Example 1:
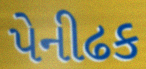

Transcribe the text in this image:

પેનીઢક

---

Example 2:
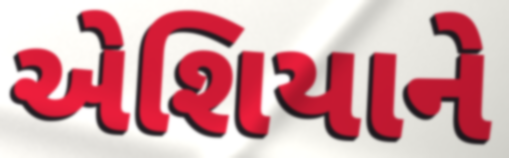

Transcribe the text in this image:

એશિયાને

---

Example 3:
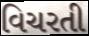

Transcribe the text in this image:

વિચરતી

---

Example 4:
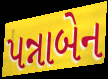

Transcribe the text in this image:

પન્નાબેન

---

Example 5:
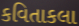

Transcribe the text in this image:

કવિતાકલા